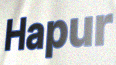
Hapur